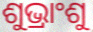
ଶୁଭ୍ରାଂଶୁ